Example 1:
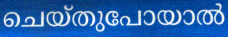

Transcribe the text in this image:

ചെയ്തുപോയാൽ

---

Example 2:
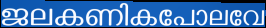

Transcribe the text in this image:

ജലകണികപോലവേ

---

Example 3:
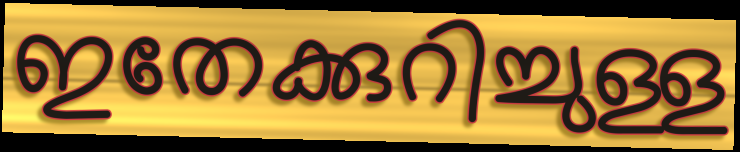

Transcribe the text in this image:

ഇതേക്കുറിച്ചുള്ള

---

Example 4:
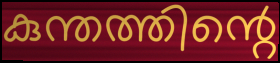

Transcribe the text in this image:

കുന്തത്തിന്റെ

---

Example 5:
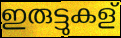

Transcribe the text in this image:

ഇരുട്ടുകള്